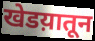
खेडय़ातून